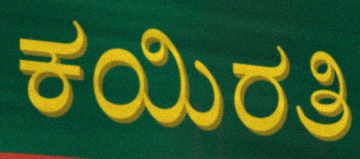
ಕಯಿರತಿ